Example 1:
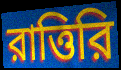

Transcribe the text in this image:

রাত্তিরি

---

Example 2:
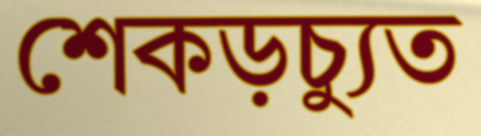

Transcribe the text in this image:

শেকড়চ্যুত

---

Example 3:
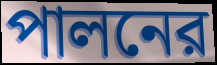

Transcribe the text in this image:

পালনের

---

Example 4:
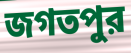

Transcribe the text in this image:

জগতপুর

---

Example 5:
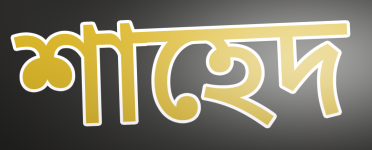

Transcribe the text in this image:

শাহেদ